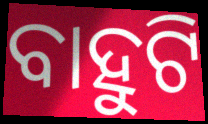
ବାହୁଟି